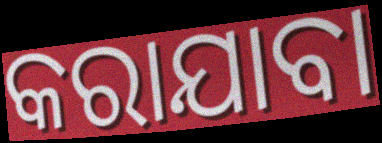
କରାଯାବା